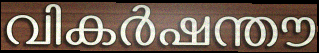
വികർഷന്തൗ